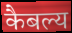
कैबल्य